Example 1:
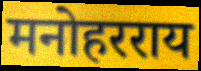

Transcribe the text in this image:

मनोहरराय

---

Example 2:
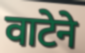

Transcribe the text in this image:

वाटेने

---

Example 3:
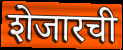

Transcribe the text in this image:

शेजारची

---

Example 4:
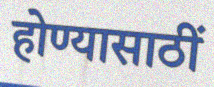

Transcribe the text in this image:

होण्यासाठीं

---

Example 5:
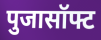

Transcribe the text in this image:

पुजासॉफ्ट